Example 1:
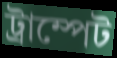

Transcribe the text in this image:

ট্ৰাম্পেট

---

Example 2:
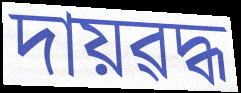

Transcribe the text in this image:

দায়ৱদ্ধ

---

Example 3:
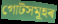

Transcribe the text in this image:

গোটসমূহৰ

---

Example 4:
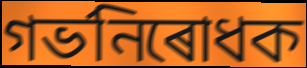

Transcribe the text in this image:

গৰ্ভনিৰোধক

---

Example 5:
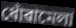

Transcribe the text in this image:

ধোঁৱামেলা